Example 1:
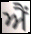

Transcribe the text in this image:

ਐਂ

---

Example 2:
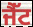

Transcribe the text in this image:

ਜੈੱਟ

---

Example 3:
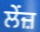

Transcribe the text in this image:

ਲੇਂਜ਼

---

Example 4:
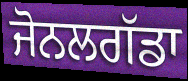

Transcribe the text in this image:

ਜੋਨਲਗੱਡਾ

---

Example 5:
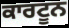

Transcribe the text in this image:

ਕਾਰਟੂਨ